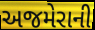
અજમેરાની